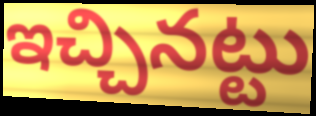
ఇచ్చినట్టు